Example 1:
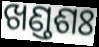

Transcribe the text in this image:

ଖଣ୍ଡଶଃ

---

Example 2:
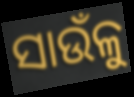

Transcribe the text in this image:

ସାଉଁଳୁ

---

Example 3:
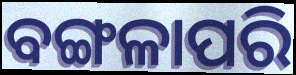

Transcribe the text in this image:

ବଙ୍ଗଳାପରି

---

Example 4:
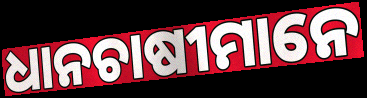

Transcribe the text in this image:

ଧାନଚାଷୀମାନେ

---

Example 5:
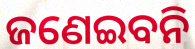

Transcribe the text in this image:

ଜଣେଇବନି